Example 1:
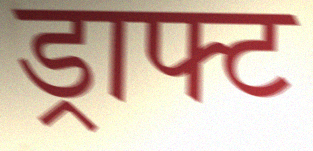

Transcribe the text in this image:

ड्राफ्ट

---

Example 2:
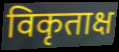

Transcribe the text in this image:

विकृताक्ष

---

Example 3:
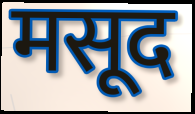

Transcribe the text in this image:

मसूद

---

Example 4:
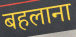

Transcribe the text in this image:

बहलाना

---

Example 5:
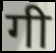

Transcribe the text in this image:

गी